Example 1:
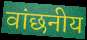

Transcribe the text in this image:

वांछनीय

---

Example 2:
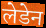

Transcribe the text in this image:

लेडेन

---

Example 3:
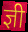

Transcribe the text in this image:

ज्ञी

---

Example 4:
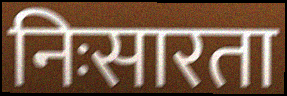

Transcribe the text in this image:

निःसारता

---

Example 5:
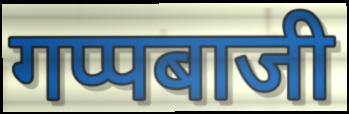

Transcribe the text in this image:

गप्पबाजी